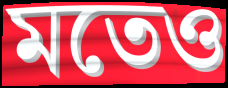
মতেও